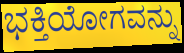
ಭಕ್ತಿಯೋಗವನ್ನು